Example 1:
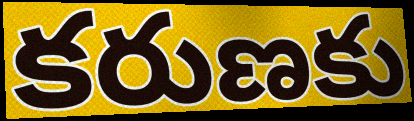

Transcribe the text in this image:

కరుణకు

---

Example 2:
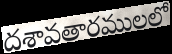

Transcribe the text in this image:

దశావతారములలో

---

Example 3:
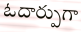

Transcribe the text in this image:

ఓదార్పుగా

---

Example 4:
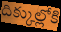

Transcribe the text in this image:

దిక్కుల్లోకి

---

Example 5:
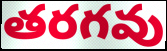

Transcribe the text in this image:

తరగవు